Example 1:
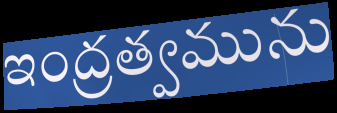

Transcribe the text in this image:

ఇంద్రత్వమును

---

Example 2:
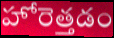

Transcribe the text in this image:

హోరెత్తడం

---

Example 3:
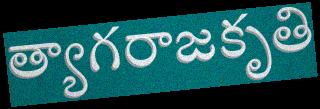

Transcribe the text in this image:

త్యాగరాజకృతి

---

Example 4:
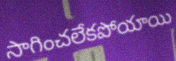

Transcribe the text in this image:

సాగించలేకపోయాయి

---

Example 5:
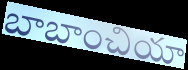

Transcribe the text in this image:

బాబాంచియా